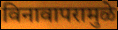
विनावापरामुळे